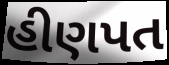
હીણપત